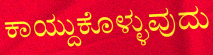
ಕಾಯ್ದುಕೊಳ್ಳುವುದು